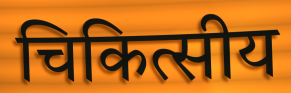
चिकित्सीय